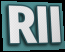
RII